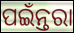
ପଇଁନ୍ତରା